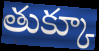
తుక్కూ